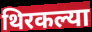
थिरकल्या